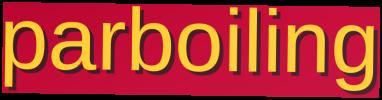
parboiling